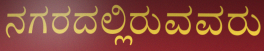
ನಗರದಲ್ಲಿರುವವರು